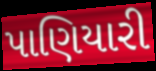
પાણિયારી